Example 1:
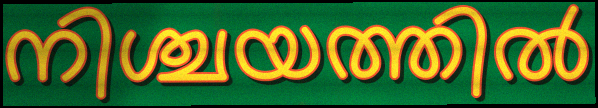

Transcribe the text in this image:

നിശ്ചയത്തിൽ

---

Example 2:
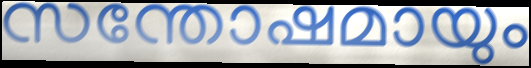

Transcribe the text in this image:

സന്തോഷമായും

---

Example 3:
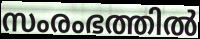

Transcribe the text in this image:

സംരംഭത്തിൽ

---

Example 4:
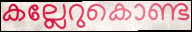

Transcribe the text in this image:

കല്ലേറുകൊണ്ട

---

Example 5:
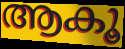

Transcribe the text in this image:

ആകൂ